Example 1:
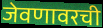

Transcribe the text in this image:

जेवणावरची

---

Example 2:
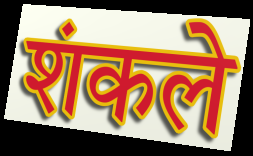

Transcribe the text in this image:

शंकले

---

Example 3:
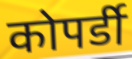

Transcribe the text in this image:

कोपर्डी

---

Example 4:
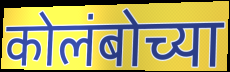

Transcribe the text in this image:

कोलंबोच्या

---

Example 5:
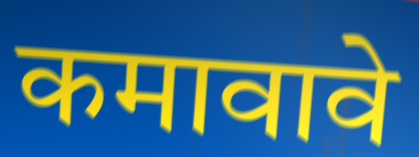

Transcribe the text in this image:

कमावावे